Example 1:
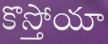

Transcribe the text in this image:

కొస్తోయా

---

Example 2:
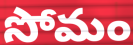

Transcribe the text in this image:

సోమం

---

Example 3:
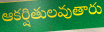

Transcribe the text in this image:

ఆకర్షితులవుతారు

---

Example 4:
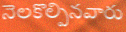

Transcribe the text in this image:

నెలకొల్పినవారు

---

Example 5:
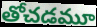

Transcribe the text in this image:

తోచడమూ